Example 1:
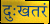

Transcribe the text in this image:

दुःखतरं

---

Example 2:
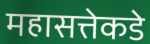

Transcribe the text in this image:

महासत्तेकडे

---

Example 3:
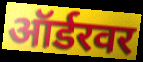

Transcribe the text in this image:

ऑर्डरवर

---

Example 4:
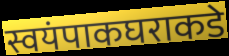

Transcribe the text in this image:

स्वयंपाकघराकडे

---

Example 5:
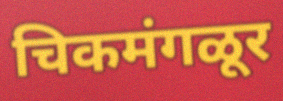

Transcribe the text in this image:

चिकमंगळूर